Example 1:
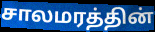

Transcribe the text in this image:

சாலமரத்தின்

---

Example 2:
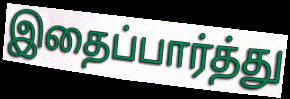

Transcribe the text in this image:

இதைப்பார்த்து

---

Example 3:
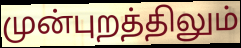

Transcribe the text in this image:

முன்புறத்திலும்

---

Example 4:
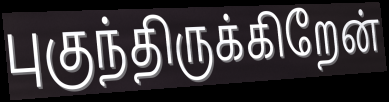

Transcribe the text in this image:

புகுந்திருக்கிறேன்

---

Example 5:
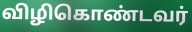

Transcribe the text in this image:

விழிகொண்டவர்